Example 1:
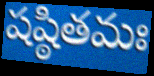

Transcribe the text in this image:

షష్ఠితమః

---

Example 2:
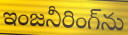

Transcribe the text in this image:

ఇంజనీరింగ్‌ను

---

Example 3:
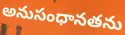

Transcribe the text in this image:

అనుసంధానతను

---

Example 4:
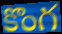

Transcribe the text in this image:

కొంగ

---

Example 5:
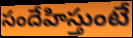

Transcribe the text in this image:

సందేహిస్తుంటే